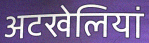
अटखेलियां